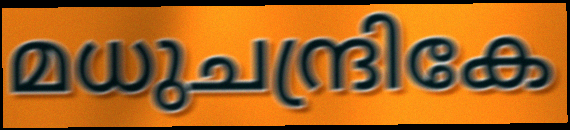
മധുചന്ദ്രികേ